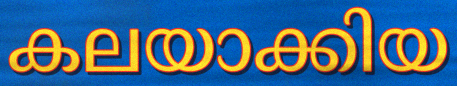
കലയാക്കിയ